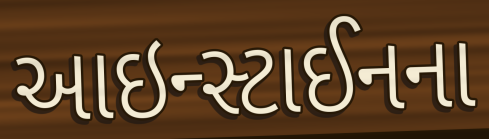
આઇન્સ્ટાઈનના